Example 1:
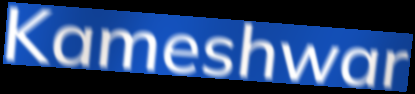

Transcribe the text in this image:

Kameshwar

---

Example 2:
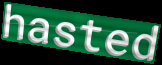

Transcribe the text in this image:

hasted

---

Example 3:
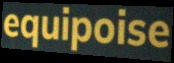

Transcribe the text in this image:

equipoise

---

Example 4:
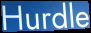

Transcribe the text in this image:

Hurdle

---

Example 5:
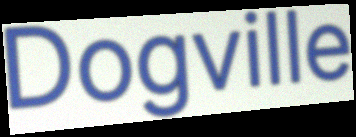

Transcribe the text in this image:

Dogville